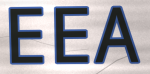
EEA